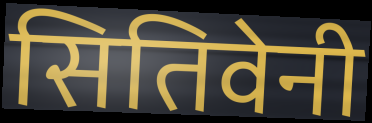
सितिवेनी